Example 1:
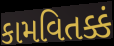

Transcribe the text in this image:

કામવિતક્કં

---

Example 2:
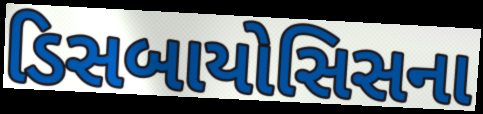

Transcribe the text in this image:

ડિસબાયોસિસના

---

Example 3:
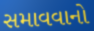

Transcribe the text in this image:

સમાવવાનો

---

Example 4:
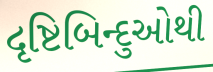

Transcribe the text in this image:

દૃષ્ટિબિન્દુઓથી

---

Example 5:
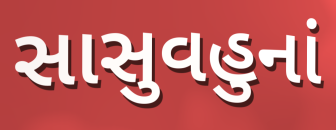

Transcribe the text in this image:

સાસુવહુનાં